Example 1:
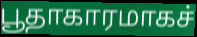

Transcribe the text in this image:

பூதாகாரமாகச்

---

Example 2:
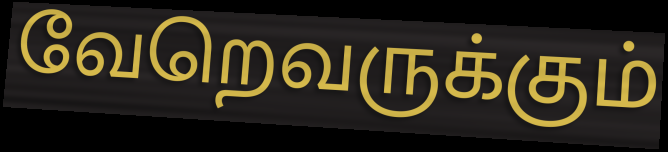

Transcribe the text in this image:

வேறெவருக்கும்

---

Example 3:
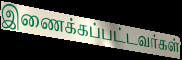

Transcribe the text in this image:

இணைக்கப்பட்டவர்கள்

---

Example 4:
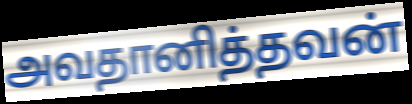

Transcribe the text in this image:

அவதானித்தவன்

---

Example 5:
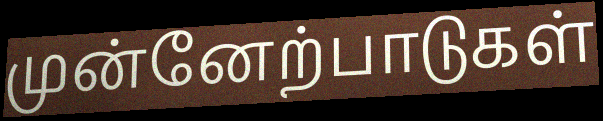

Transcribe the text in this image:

முன்னேற்பாடுகள்